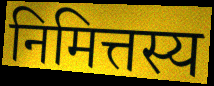
निमित्तस्य